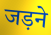
जड़ने